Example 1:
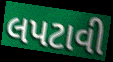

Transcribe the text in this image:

લપટાવી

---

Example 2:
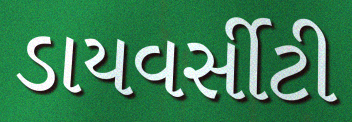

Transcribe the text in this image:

ડાયવર્સીટી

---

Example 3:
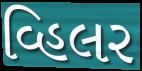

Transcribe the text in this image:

વ્હિલર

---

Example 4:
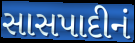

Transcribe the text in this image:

સાસપાદીનં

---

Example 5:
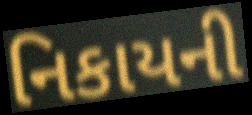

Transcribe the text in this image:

નિકાયની